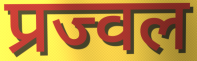
प्रज्वल